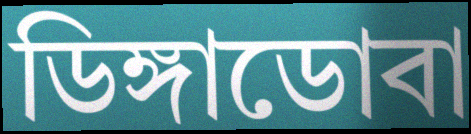
ডিঙ্গাডোবা